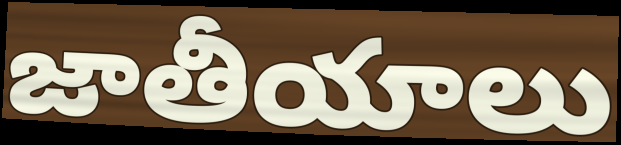
జాతీయాలు